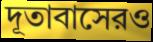
দূতাবাসেরও